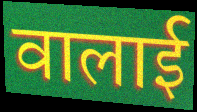
वालाई